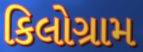
કિલોગ્રામ